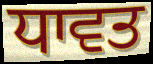
ਧਾਵਤ